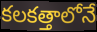
కలకత్తాలోనే